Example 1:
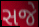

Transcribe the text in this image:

સજે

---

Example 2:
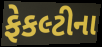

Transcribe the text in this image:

ફેકલ્ટીના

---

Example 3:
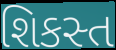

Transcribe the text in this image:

શિકસ્ત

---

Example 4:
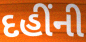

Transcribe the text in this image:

દહીંની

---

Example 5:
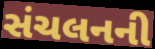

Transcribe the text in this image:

સંચલનની